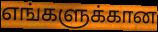
எங்களுக்கான